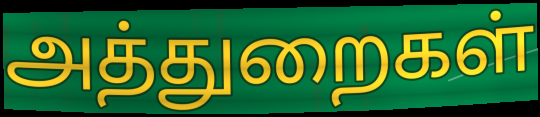
அத்துறைகள்